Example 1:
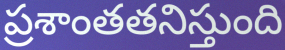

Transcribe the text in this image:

ప్రశాంతతనిస్తుంది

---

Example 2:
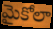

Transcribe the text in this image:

మైకోలా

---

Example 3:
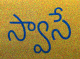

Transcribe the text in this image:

స్వాసే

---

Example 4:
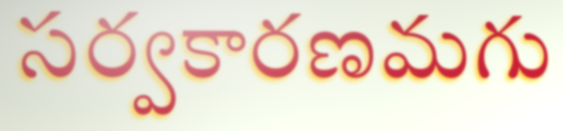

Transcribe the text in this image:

సర్వకారణమగు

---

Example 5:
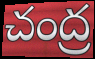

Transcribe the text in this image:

చంద్ర